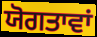
ਯੋਗਤਾਵਾਂ